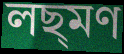
লছ্মণ